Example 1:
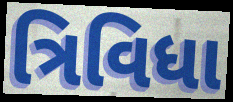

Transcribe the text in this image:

ત્રિવિધા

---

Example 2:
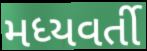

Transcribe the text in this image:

મધ્યવર્તી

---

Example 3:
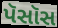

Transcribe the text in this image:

પૅસૉસ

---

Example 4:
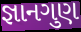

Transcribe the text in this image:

જ્ઞાનગુણ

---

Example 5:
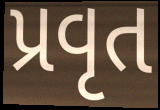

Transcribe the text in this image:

પ્રવૃત